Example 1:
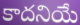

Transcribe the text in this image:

కాదనియే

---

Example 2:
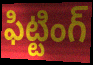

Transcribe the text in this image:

ఫిట్టింగ్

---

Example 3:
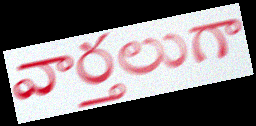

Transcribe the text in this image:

వార్తలుగా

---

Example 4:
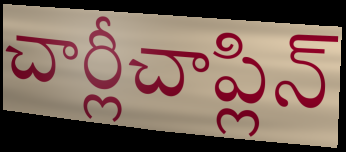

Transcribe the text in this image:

చార్లీచాప్లిన్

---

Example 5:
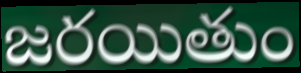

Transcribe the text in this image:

జరయితుం